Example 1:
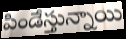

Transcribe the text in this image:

పిండేస్తున్నాయి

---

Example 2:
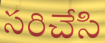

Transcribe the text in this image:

సరిచేసి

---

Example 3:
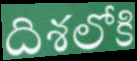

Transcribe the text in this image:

దిశలోకి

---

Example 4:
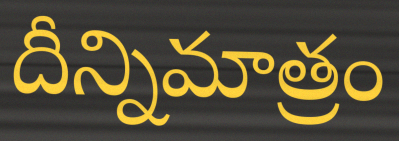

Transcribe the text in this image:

దీన్నిమాత్రం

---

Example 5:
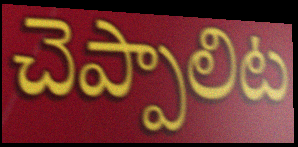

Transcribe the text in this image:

చెప్పాలిట